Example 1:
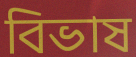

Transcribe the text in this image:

বিভাষ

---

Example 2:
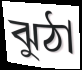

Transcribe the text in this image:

ঝুঠা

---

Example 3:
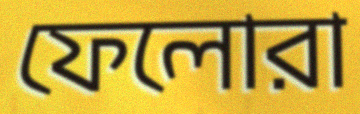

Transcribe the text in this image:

ফেলোরা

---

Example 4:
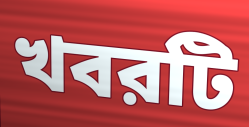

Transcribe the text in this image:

খবরটি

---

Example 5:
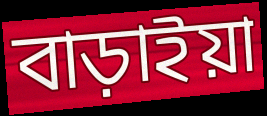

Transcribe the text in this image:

বাড়াইয়া